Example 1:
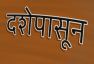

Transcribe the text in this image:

दशेपासून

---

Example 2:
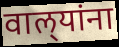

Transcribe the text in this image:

वाल्यांना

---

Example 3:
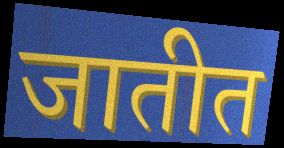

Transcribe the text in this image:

जातीत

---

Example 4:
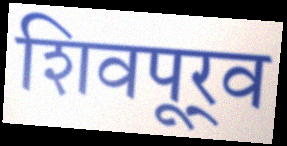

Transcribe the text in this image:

शिवपूर्व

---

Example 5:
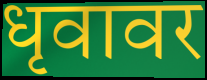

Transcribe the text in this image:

धृवावर